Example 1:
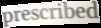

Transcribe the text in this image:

prescribed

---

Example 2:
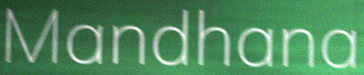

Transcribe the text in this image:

Mandhana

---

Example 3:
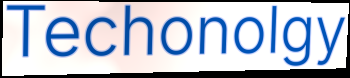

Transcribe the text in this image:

Techonolgy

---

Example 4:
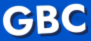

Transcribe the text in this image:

GBC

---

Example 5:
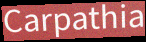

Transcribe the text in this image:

Carpathia